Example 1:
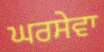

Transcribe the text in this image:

ਘਰਸੇਵਾ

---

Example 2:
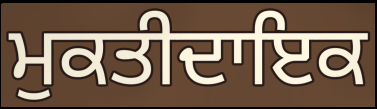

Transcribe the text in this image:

ਮੁਕਤੀਦਾਇਕ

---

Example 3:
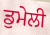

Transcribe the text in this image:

ਡੁਮੇਲੀ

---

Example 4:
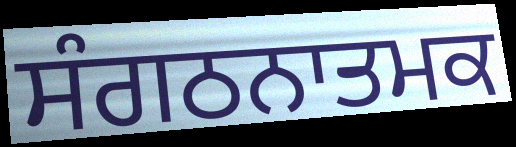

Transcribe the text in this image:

ਸੰਗਠਨਾਤਮਕ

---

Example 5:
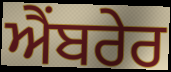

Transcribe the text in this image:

ਐਂਬਰੇਰ